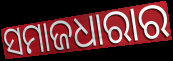
ସମାଜଧାରାର